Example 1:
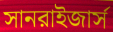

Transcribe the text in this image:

সানরাইজার্স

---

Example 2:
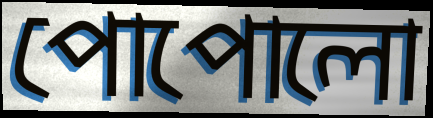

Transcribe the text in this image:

পোপোলো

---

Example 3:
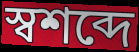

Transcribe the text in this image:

স্বশব্দে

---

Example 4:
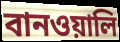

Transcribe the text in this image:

বানওয়ালি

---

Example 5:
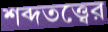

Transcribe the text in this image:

শব্দতত্ত্বের